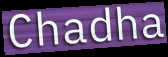
Chadha